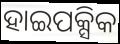
ହାଇପକ୍ସିକ